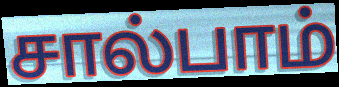
சால்பாம்